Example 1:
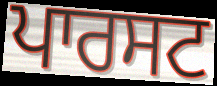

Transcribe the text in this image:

ਪਾਰਸਟ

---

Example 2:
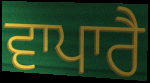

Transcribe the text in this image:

ਵਾਪਾਰੈ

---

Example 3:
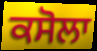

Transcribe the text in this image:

ਕਸੋਲਾ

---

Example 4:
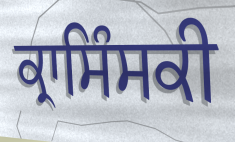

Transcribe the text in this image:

ਕ੍ਰਾਸਿੰਸਕੀ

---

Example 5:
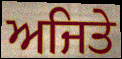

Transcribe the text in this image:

ਅਜਿਤੇ